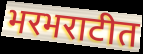
भरभराटीत